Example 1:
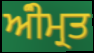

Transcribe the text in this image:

ਅੰੀਮ੍ਰਤ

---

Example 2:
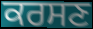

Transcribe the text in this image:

ਕਰਸਣ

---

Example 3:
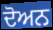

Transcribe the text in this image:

ਦੋਅਨ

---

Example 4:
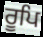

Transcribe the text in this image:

ਰੂਪਿ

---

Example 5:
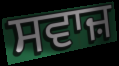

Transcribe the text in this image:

ਸਵਾਜ਼